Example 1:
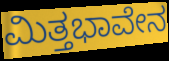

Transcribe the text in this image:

ಮಿತ್ತಭಾವೇನ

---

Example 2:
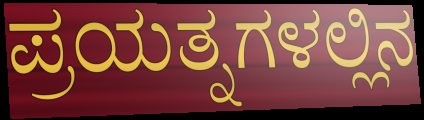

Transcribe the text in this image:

ಪ್ರಯತ್ನಗಳಲ್ಲಿನ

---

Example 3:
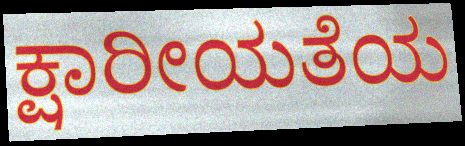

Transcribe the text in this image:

ಕ್ಷಾರೀಯತೆಯ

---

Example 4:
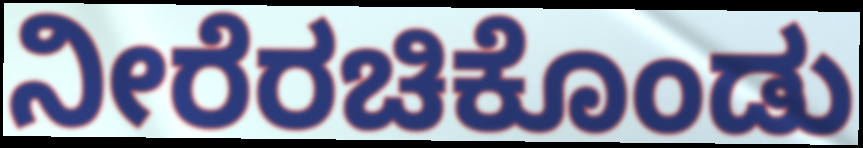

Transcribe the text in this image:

ನೀರೆರಚಿಕೊಂಡು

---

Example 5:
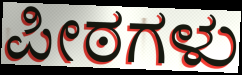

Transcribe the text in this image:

ಪೀಠಗಳು